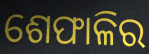
ଶେଫାଳିର